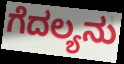
ಗೆದಲ್ಯನು